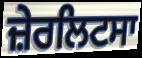
ਜ਼ੇਰਲਿਟਸਾ